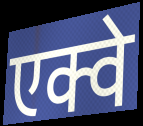
एक्वे